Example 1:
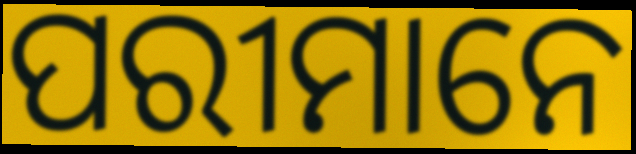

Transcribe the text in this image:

ପରୀମାନେ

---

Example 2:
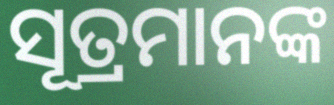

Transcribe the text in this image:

ସୂତ୍ରମାନଙ୍କ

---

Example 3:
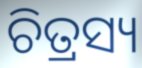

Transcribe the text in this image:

ଚିତ୍ରସ୍ୟ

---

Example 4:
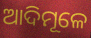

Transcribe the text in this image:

ଆଦିମୂଳେ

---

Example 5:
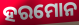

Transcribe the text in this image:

ହରମୋନ